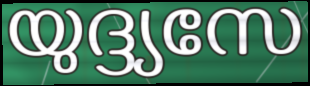
യുദ്ദ്യസേ